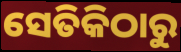
ସେତିକିଠାରୁ